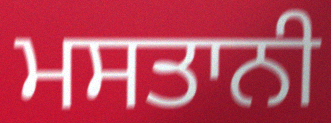
ਮਸਤਾਨੀ